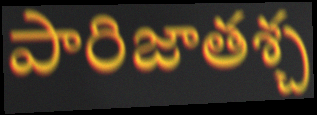
పారిజాతశ్చ